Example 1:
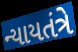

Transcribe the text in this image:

ન્યાયતંત્રે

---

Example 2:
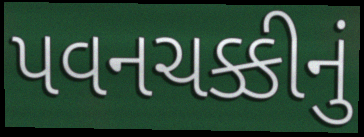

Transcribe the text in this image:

પવનચક્કીનું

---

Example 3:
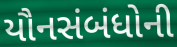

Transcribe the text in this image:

યૌનસંબંધોની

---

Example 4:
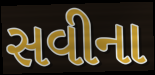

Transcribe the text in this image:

સવીના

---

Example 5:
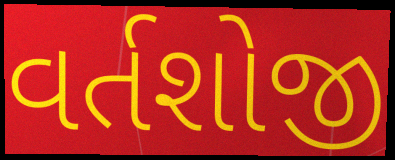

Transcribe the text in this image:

વર્તશોજી